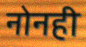
नोनही